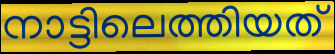
നാട്ടിലെത്തിയത്